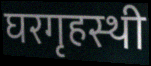
घरगृहस्थी